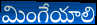
మింగేయాలి